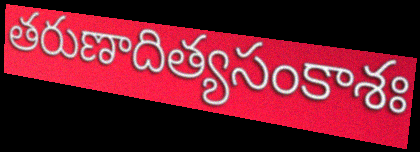
తరుణాదిత్యసంకాశః